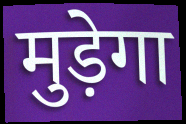
मुड़ेगा